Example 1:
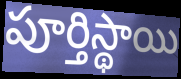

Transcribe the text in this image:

పూర్తిస్థాయి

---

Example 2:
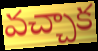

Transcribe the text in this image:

వచ్చాక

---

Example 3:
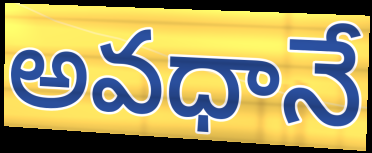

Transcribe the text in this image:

అవధానే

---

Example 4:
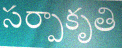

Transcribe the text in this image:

సర్పాకృతి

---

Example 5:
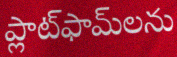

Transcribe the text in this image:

ప్లాట్‌ఫామ్‌లను